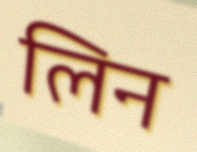
लिन